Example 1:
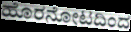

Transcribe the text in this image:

ಹೊರನೋಟದಿಂದ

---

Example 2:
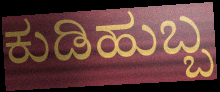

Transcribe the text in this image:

ಕುಡಿಹುಬ್ಬ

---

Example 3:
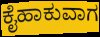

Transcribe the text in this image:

ಕೈಹಾಕುವಾಗ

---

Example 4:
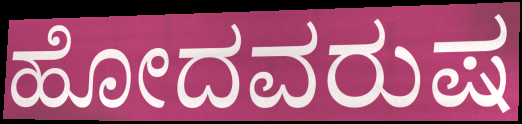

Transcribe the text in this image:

ಹೋದವರುಷ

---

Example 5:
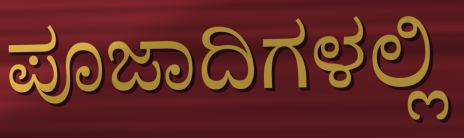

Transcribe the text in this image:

ಪೂಜಾದಿಗಳಲ್ಲಿ